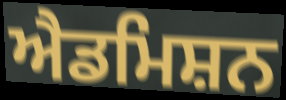
ਐਡਮਿਸ਼ਨ